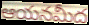
ఆయనమీద